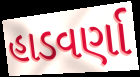
હાડવર્ણા